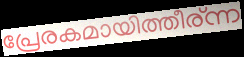
പ്രേരകമായിത്തീര്ന്ന